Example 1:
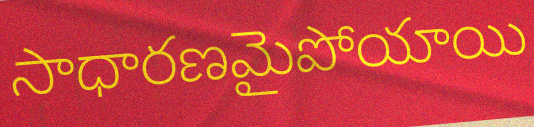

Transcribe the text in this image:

సాధారణమైపోయాయి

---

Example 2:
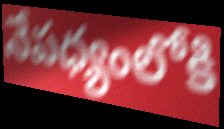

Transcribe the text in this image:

నేపధ్యంలోకి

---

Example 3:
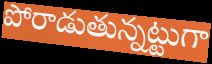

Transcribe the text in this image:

పోరాడుతున్నట్టుగా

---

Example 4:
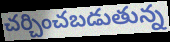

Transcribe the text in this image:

చర్చించబడుతున్న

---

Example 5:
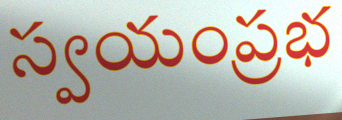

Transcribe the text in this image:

స్వయంప్రభ